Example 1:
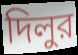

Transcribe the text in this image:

দিলুর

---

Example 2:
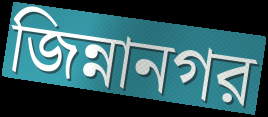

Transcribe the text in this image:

জিন্নানগর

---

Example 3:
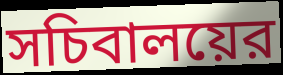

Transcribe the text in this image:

সচিবালয়ের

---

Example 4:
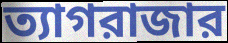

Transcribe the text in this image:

ত্যাগরাজার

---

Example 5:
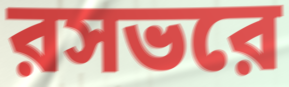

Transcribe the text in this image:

রসভরে